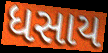
ધસાય